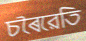
চৰৈৱেতি